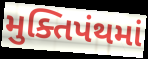
મુક્તિપંથમાં